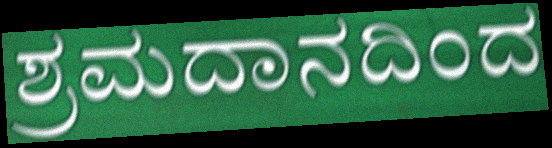
ಶ್ರಮದಾನದಿಂದ